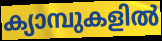
ക്യാമ്പുകളിൽ